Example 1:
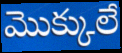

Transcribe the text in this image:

మొక్కులే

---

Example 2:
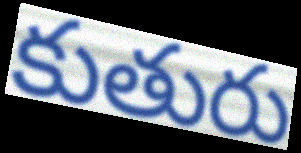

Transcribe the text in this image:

కుతురు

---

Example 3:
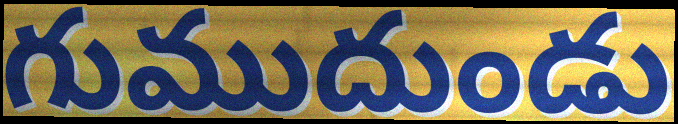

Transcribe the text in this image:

గుముదుండు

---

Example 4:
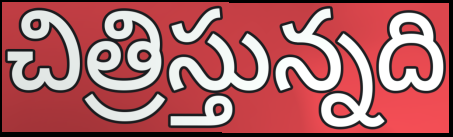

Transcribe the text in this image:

చిత్రిస్తున్నది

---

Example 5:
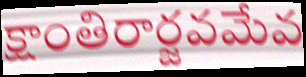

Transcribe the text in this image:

క్షాంతిరార్జవమేవ